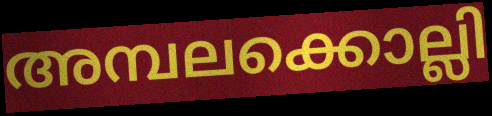
അമ്പലക്കൊല്ലി